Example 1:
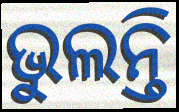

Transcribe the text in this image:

ଭୁଲନ୍ତି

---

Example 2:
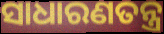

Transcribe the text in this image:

ସାଧାରଣତନ୍ତ୍ର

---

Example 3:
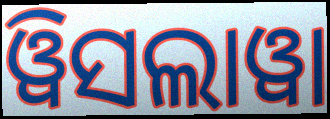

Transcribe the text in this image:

ୱିସଲାୱା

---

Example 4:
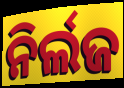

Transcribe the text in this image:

ନିର୍ଲଜ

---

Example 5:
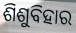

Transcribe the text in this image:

ଶିଶୁବିହାର